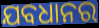
ଯବଧାନର